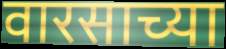
वारसाच्या